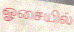
ஓசையில்